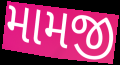
મામજી